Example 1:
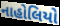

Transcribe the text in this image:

નાહોલિયો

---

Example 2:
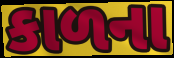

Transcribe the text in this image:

કાળના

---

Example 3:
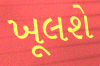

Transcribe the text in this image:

ખૂલશે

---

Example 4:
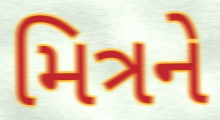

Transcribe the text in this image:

મિત્રને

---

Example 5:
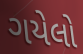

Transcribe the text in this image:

ગયેલો